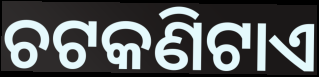
ଚଟକଣିଟାଏ